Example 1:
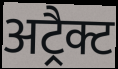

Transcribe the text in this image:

अट्रैक्ट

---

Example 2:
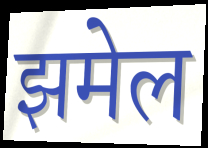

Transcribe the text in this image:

झमेल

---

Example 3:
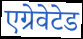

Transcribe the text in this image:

एग्रेवेटेड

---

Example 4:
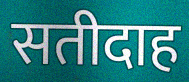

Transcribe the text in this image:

सतीदाह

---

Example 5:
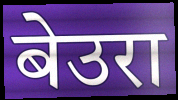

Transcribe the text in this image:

बेउरा